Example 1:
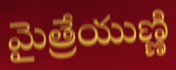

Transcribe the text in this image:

మైత్రేయుణ్ణి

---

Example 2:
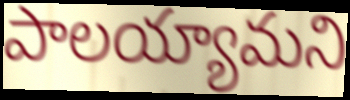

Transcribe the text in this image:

పాలయ్యామని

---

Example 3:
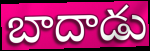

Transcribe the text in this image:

బాదాడు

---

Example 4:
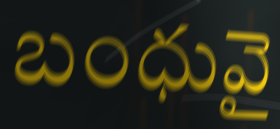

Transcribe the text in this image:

బంధువై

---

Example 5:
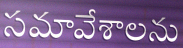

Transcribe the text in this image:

సమావేశాలను